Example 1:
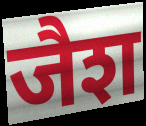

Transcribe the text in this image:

जैश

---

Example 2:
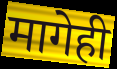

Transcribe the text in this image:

मागेही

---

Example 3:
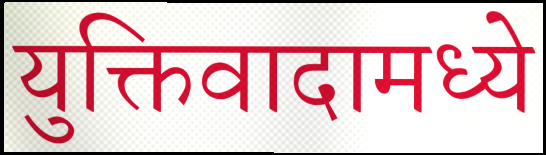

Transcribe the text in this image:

युक्तिवादामध्ये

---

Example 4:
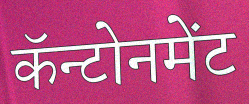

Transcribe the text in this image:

कॅन्टोनमेंट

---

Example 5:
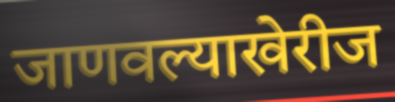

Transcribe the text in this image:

जाणवल्याखेरीज